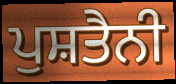
ਪੁਸ਼ਤੈਨੀ